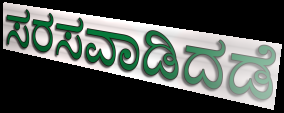
ಸರಸವಾಡಿದಡೆ